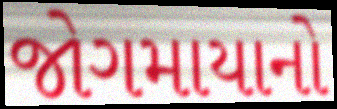
જોગમાયાનો